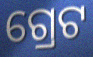
ଗ୍ରେଟ